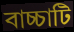
বাচ্চাটি